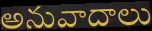
అనువాదాలు